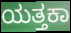
ಯತ್ತಕಾ